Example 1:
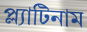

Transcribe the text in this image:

প্ল্যাটিনাম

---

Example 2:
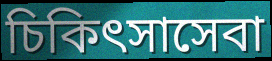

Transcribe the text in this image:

চিকিৎসাসেবা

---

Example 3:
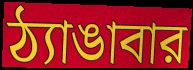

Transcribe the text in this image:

ঠ্যাঙাবার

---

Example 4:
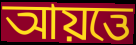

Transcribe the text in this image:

আয়ত্তে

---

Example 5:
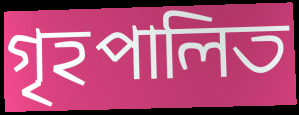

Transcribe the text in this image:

গৃহপালিত